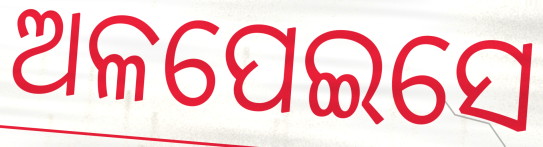
ଅଳପେଇସେ